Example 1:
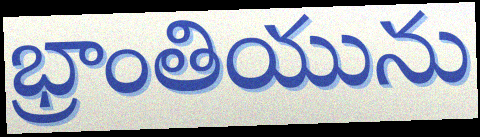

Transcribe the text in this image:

భ్రాంతియును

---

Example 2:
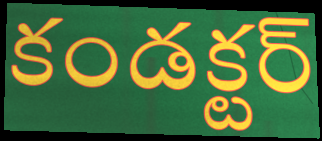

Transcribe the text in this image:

కండక్టర్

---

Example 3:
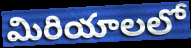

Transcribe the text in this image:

మిరియాలలో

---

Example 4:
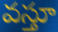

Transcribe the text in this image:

వస్తూ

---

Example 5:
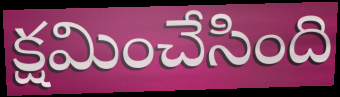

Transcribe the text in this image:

క్షమించేసింది